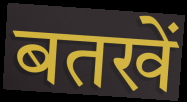
बतखें